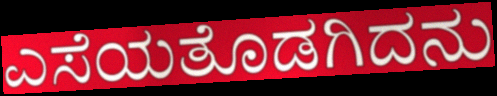
ಎಸೆಯತೊಡಗಿದನು